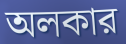
অলকার